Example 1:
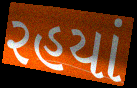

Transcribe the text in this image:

રહયાં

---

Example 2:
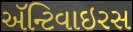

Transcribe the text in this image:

ઍન્ટિવાઇરસ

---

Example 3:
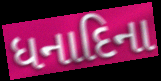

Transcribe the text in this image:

ધનાદિના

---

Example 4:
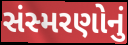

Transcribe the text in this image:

સંસ્મરણોનું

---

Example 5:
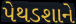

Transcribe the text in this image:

પેથડશાને